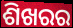
ଶିଖରର